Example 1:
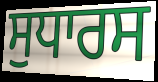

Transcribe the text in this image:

ਸੁਧਾਰਸ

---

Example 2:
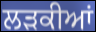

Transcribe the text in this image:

ਲੜਕੀਆਂ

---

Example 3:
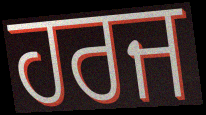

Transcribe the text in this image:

ਹਰਜ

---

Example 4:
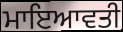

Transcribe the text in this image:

ਮਾਇਆਵਤੀ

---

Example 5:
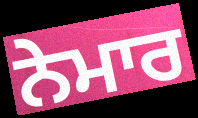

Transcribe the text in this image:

ਨੇਮਾਰ